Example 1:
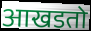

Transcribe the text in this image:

आखडतो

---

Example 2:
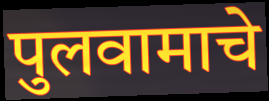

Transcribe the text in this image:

पुलवामाचे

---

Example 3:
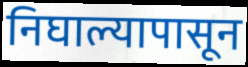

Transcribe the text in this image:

निघाल्यापासून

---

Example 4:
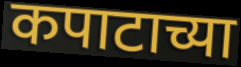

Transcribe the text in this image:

कपाटाच्या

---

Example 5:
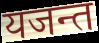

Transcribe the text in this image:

यजन्त